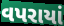
વપરાયાં